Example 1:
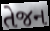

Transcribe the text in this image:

તેજન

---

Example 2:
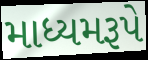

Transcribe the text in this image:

માધ્યમરૂપે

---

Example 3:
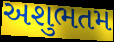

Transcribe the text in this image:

અશુભતમ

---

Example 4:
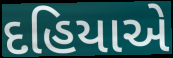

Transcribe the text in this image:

દહિયાએ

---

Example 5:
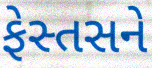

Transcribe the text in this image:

ફેસ્તસને